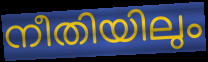
നീതിയിലും